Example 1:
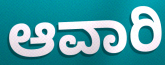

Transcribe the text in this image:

ಆವಾರಿ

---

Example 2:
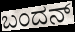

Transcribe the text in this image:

ಬಂದನ್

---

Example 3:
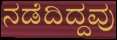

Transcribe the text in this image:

ನಡೆದಿದ್ದವು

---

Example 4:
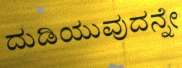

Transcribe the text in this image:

ದುಡಿಯುವುದನ್ನೇ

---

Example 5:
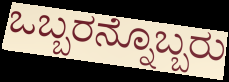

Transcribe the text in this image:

ಒಬ್ಬರನ್ನೊಬ್ಬರು